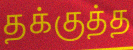
தக்குத்த